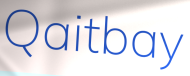
Qaitbay